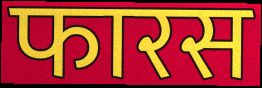
फारस